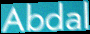
Abdal